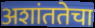
अशांततेचा